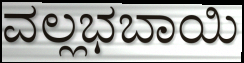
ವಲ್ಲಭಬಾಯಿ